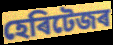
হেৰিটেজৰ